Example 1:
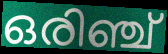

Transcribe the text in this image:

ഒരിഞ്ച്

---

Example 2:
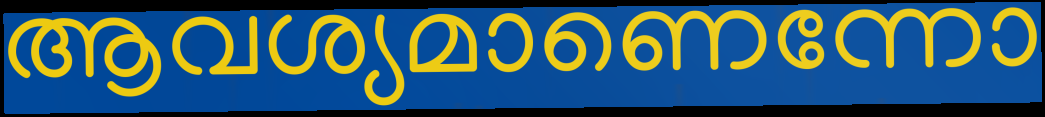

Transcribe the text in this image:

ആവശ്യമാണെന്നോ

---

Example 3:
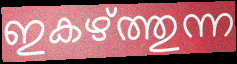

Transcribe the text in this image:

ഇകഴ്ത്തുന്ന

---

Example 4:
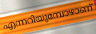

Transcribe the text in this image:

എന്നറിയുമ്പോഴാണ്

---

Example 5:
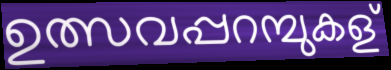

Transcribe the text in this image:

ഉത്സവപ്പറമ്പുകള്